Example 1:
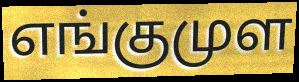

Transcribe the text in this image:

எங்குமுள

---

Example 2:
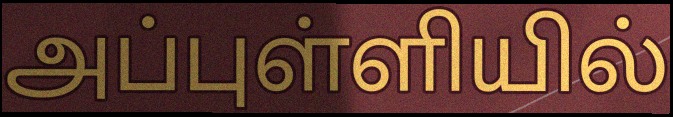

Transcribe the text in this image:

அப்புள்ளியில்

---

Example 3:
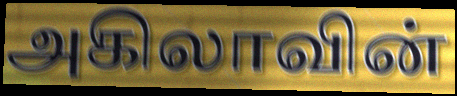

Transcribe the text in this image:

அகிலாவின்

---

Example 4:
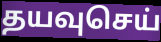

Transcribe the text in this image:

தயவுசெய்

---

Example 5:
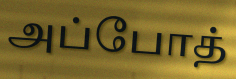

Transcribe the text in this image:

அப்போத்